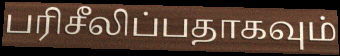
பரிசீலிப்பதாகவும்